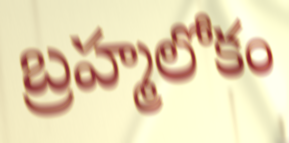
బ్రహ్మలోకం